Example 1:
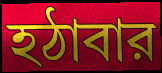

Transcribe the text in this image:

হঠাবার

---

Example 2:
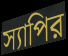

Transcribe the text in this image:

স্যাপির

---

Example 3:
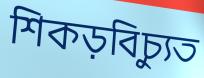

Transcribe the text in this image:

শিকড়বিচ্যুত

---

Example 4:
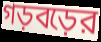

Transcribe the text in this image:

গড়বড়ের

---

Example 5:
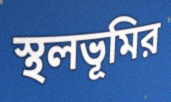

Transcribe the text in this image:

স্থলভূমির